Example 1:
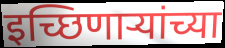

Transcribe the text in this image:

इच्छिणार्‍यांच्या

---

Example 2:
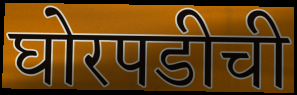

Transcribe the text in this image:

घोरपडीची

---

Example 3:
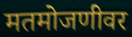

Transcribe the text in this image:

मतमोजणीवर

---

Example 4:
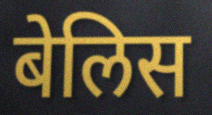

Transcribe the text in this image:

बेलिस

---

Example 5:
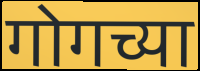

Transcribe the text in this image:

गोगच्या